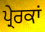
ਪ੍ਰੇਰਕਾਂ